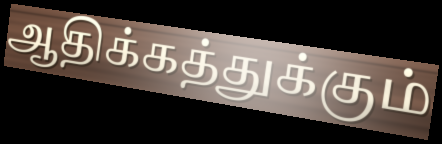
ஆதிக்கத்துக்கும்